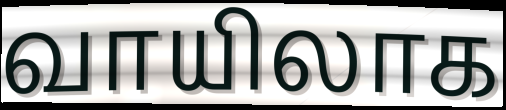
வாயிலாக